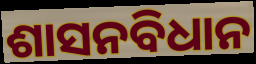
ଶାସନବିଧାନ